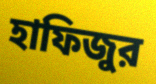
হাফিজুর